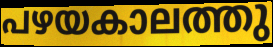
പഴയകാലത്തു